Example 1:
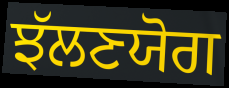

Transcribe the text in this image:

ਝੱਲਣਯੋਗ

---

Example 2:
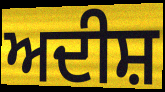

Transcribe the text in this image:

ਅਦੀਸ਼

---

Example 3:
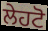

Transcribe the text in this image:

ਲੇਹਟੋ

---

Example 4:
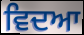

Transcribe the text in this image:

ਵਿਦਆ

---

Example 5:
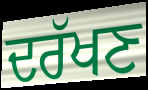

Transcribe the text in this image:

ਦਰੱਖਣ